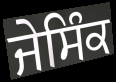
ਜੇਸਿੰਕ